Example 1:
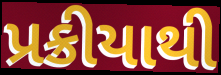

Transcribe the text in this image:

પ્રક્રીયાથી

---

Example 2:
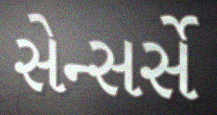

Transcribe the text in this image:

સેન્સર્સે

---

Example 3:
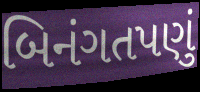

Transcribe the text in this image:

બિનંગતપણું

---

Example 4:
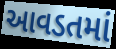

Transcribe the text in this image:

આવડતમાં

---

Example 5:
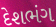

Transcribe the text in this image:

દેશભંગ